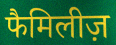
फैमिलीज़